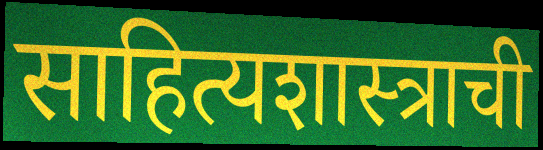
साहित्यशास्त्राची